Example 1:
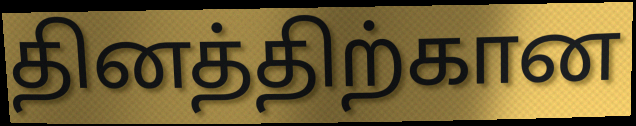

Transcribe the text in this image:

தினத்திற்கான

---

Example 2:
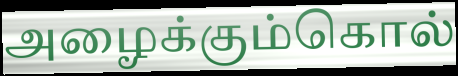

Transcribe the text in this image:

அழைக்கும்கொல்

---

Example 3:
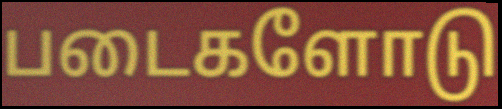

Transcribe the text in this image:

படைகளோடு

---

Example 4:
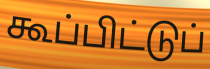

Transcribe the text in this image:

கூப்பிட்டுப்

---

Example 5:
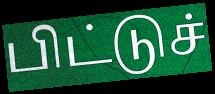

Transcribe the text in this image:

பிட்டுச்